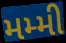
મમ્મી